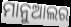
ମାନୁଆଲର